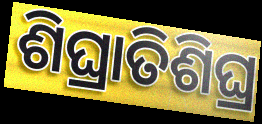
ଶିଘ୍ରାତିଶିଘ୍ର